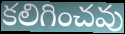
కలిగించవు